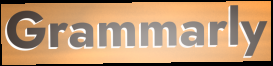
Grammarly